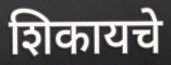
शिकायचे